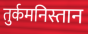
तुर्कमनिस्तान